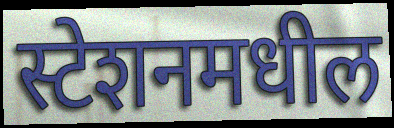
स्टेशनमधील